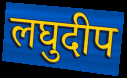
लघुदीप